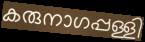
കരുനാഗപ്പള്ളി